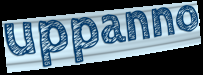
uppanno